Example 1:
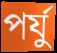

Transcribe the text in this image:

পর্যু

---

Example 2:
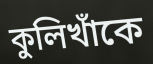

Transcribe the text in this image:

কুলিখাঁকে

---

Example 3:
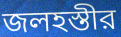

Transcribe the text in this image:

জলহস্তীর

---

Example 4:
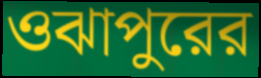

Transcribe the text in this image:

ওঝাপুরের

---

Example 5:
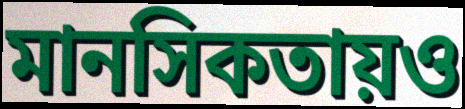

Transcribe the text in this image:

মানসিকতায়ও